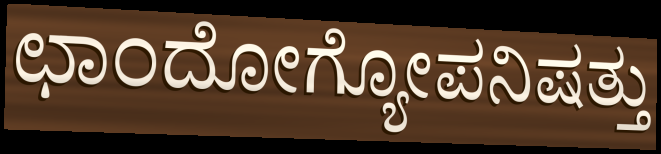
ಛಾಂದೋಗ್ಯೋಪನಿಷತ್ತು